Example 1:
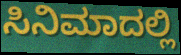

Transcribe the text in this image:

ಸಿನಿಮಾದಲ್ಲಿ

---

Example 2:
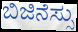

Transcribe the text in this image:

ಬಿಜಿನೆಸ್ಸು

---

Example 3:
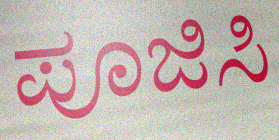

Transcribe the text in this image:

ಪೂಜಿಸಿ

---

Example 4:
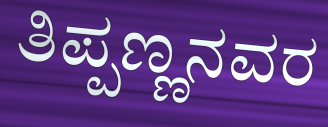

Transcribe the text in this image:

ತಿಪ್ಪಣ್ಣನವರ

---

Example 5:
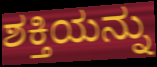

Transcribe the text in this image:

ಶಕ್ತಿಯನ್ನು